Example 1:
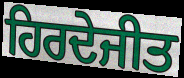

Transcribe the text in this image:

ਹਿਰਦੇਜੀਤ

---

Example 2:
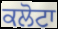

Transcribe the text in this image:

ਕਲੋਟਾ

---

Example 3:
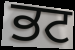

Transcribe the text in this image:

ਭਟ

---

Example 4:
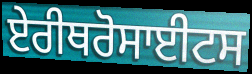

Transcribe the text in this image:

ਏਰੀਥਰੋਸਾਈਟਸ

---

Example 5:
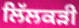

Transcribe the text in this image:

ਲਿੱਲਕੜੀ